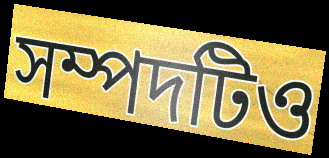
সম্পদটিও